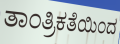
ತಾಂತ್ರಿಕತೆಯಿಂದ